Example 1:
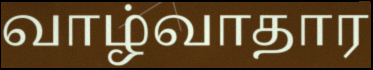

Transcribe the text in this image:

வாழ்வாதார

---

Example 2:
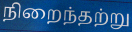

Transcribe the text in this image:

நிறைந்தற்று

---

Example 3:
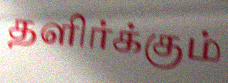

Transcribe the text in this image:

தளிர்க்கும்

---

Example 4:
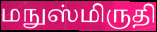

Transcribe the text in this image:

மநுஸ்மிருதி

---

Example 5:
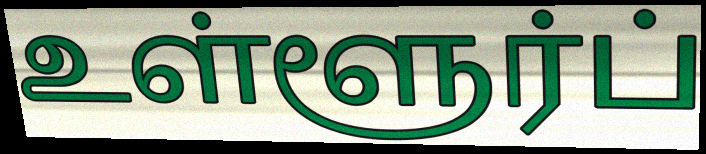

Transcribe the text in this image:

உள்ளூர்ப்